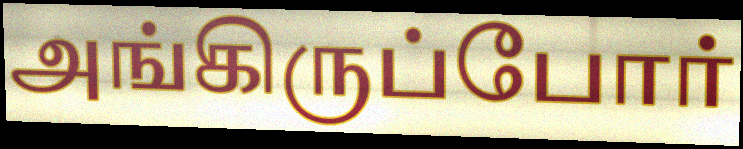
அங்கிருப்போர்